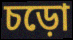
চড়ো